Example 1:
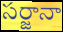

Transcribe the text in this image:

సర్జానా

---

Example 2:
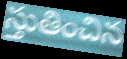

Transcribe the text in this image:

స్తుతించిన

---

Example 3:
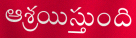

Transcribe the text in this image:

ఆశ్రయిస్తుంది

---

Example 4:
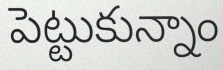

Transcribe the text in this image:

పెట్టుకున్నాం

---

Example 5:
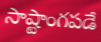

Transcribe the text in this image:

సాష్టాంగపడే